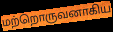
மற்றொருவனாகிய